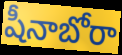
షీనాబోరా